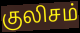
குலிசம்